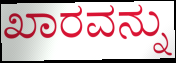
ಖಾರವನ್ನು